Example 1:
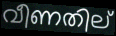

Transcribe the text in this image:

വീണതില്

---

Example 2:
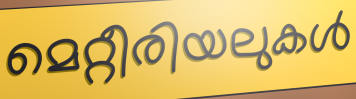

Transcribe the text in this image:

മെറ്റീരിയലുകൾ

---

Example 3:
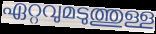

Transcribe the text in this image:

ഏറ്റവുമടുത്തുള്ള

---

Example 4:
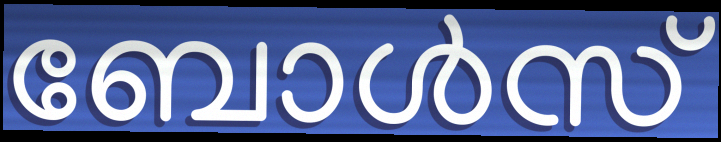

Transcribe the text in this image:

ബോൾസ്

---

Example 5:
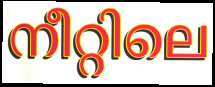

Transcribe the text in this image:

നീറ്റിലെ